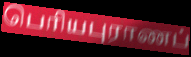
பெரியபுராணப்